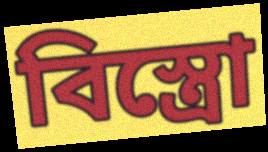
বিস্ত্রো